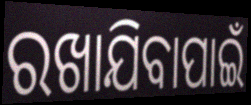
ରଖାଯିବାପାଇଁ